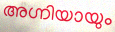
അഗ്നിയായും